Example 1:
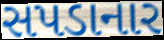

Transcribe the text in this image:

સપડાનાર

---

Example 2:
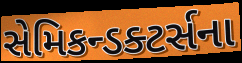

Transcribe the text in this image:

સેમિકન્ડક્ટર્સના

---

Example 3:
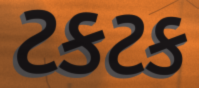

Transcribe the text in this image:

ટકટક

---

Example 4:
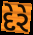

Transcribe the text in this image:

દેરે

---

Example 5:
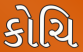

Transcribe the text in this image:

કોચિ